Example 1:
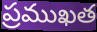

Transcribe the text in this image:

ప్రముఖత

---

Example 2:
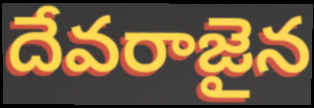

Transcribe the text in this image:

దేవరాజైన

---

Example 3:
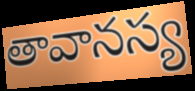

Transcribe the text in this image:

తావానస్య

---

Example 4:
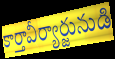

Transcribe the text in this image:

కార్తావీర్యార్జునుడి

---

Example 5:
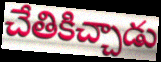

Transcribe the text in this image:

చేతికిచ్చాడు